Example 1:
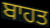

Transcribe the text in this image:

ਬਾਹਤ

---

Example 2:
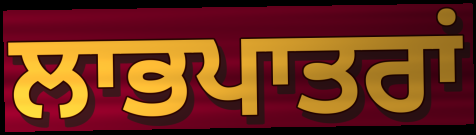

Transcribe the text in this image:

ਲਾਭਪਾਤਰਾਂ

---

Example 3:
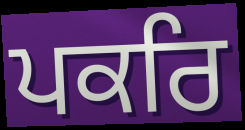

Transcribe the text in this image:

ਪਕਰਿ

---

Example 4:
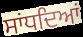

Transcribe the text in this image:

ਸਾਂਧਦਿਆਂ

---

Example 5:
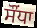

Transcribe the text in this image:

ਸੌਂਧਾ